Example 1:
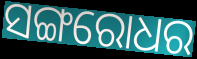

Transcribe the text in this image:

ସଙ୍ଗରୋଧର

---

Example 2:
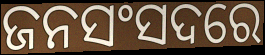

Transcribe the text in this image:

ଜନସଂସଦରେ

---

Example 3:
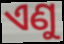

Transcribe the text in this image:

ଏଣୁ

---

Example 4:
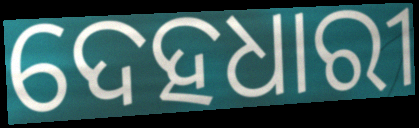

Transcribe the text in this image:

ଦେହଧାରୀ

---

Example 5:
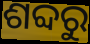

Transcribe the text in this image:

ଶବ୍ଦରୁ